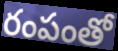
రంపంతో